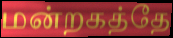
மன்றகத்தே